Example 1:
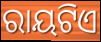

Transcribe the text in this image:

ରାୟଟିଏ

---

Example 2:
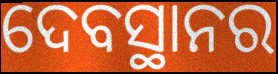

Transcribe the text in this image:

ଦେବସ୍ଥାନର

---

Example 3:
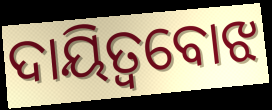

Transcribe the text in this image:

ଦାୟିତ୍ୱବୋଝ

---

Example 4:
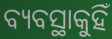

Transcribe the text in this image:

ବ୍ୟବସ୍ଥାକୁହିଁ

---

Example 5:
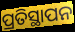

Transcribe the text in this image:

ପ୍ରତିସ୍ଥାପନ